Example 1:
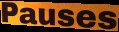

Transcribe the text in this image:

Pauses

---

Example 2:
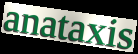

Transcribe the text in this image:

anataxis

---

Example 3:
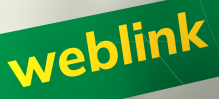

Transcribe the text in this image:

weblink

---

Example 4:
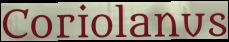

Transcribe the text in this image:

Coriolanus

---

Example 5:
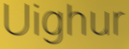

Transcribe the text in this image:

Uighur